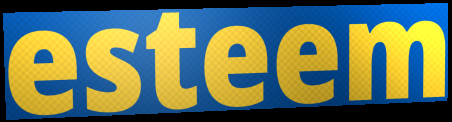
esteem